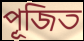
পূজিত